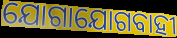
ଯୋଗାଯୋଗବାହୀ